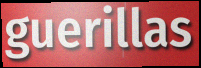
guerillas